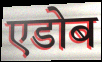
एडोब